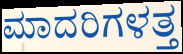
ಮಾದರಿಗಳತ್ತ